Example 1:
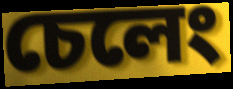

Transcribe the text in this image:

চেলেং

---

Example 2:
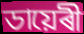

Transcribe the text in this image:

ডায়েৰী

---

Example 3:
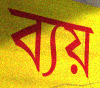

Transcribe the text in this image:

ব্যয়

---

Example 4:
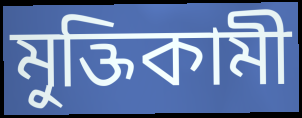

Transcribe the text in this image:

মুক্তিকামী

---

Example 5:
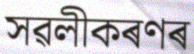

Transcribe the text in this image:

সৱলীকৰণৰ